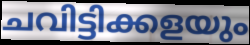
ചവിട്ടിക്കളയും